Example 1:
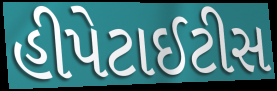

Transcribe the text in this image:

હીપેટાઈટીસ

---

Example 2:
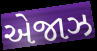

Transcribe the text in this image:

એજાઝ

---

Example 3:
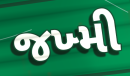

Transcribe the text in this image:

જખ્મી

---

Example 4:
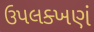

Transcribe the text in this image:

ઉપલક્ખણં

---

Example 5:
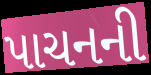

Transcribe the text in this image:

પાચનની